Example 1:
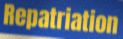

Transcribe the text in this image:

Repatriation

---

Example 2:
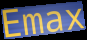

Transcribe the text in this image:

Emax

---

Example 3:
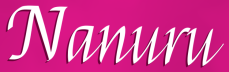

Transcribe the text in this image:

Nanuru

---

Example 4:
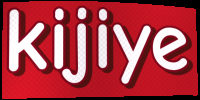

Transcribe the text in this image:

kijiye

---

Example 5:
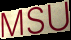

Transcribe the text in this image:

MSU